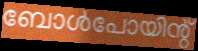
ബോൾപോയിന്റ്